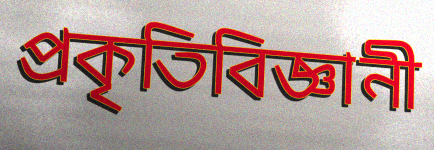
প্রকৃতিবিজ্ঞানী